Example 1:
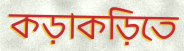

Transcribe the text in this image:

কড়াকড়িতে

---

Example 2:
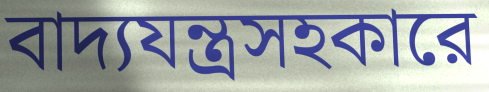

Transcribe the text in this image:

বাদ্যযন্ত্রসহকারে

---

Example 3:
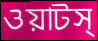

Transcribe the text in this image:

ওয়াটস্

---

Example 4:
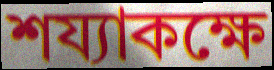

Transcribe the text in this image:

শয্যাকক্ষে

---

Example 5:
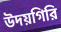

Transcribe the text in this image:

উদয়গিরি